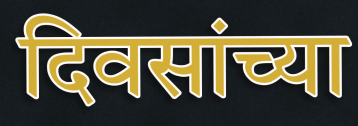
दिवसांच्या